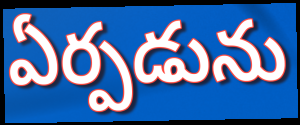
ఏర్పడును